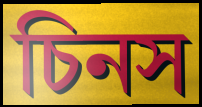
চিনস